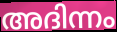
അദിന്നം